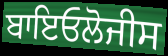
ਬਾਇਓਲੋਜੀਸ